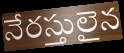
నేరస్తులైన